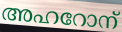
അഹറോന്